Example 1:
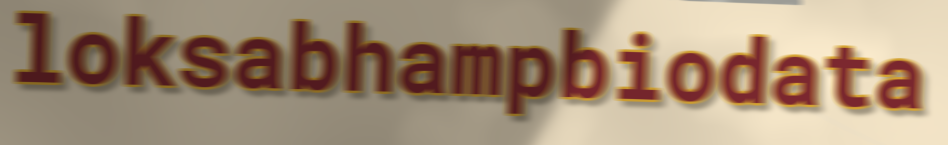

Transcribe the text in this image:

loksabhampbiodata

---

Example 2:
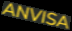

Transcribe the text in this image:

ANVISA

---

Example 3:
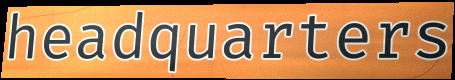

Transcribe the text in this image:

headquarters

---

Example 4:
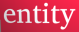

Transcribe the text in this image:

entity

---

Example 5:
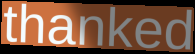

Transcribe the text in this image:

thanked